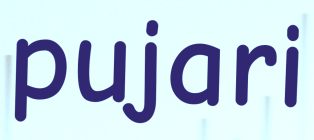
pujari